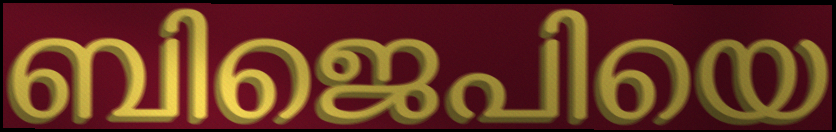
ബിജെപിയെ